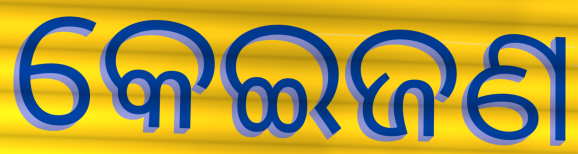
କେଇଜଣ